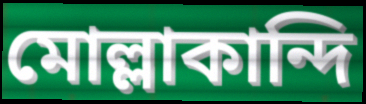
মোল্লাকান্দি